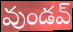
వుండవ్